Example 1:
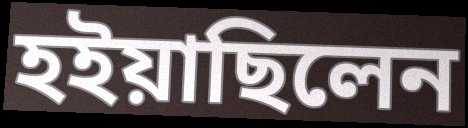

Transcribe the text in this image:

হইয়াছিলেন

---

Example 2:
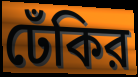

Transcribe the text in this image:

ঢেঁকির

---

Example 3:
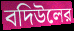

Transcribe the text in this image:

বদিউলের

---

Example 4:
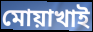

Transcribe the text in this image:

মোয়াখাই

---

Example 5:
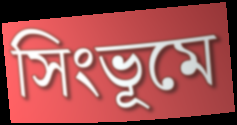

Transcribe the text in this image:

সিংভূমে